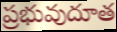
ప్రభువుదూత